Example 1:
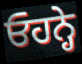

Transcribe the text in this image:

ਓਹਨ੍ਹੇ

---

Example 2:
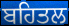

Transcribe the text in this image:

ਬਹਿਤਲ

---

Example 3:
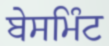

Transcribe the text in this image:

ਬੇਸਮਿੰਟ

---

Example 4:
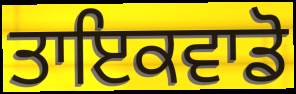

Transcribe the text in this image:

ਤਾਇਕਵਾਡੋ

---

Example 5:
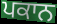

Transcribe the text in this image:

ਪਕਾਨ